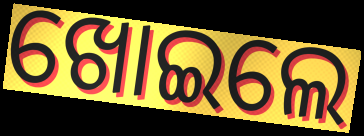
ଖୋଇଲେ